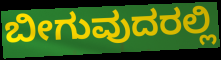
ಬೀಗುವುದರಲ್ಲಿ